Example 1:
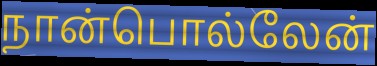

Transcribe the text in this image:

நான்பொல்லேன்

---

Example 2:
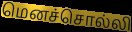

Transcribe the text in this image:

மெனச்சொல்லி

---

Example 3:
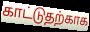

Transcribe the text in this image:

காட்டுதற்காக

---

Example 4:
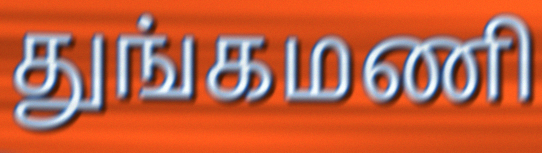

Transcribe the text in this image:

துங்கமணி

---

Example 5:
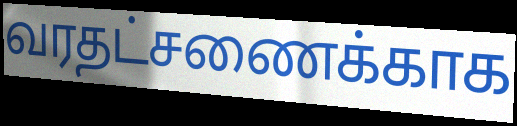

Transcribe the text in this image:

வரதட்சணைக்காக